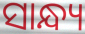
ସାନ୍ଧ୍ୟ